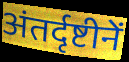
अंतर्दृष्टीनें